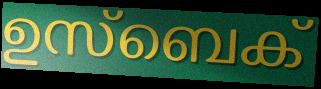
ഉസ്ബെക്